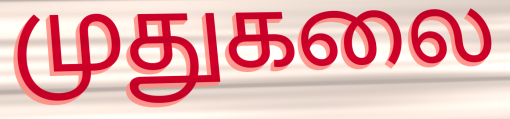
முதுகலை